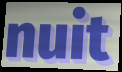
nuit